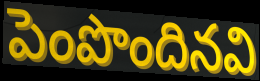
పెంపొందినవి